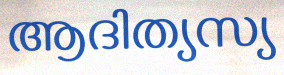
ആദിത്യസ്യ